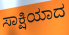
ಸಾಕ್ಷಿಯಾದ